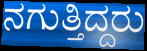
ನಗುತ್ತಿದ್ದರು